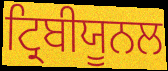
ਟ੍ਰਿਬੀਯੂਨਲ